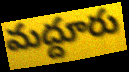
మద్దూరు